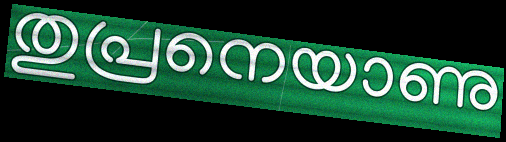
തുപ്രനെയാണു